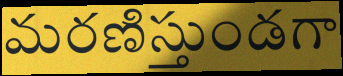
మరణిస్తుండగా